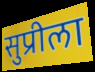
सुप्रीला